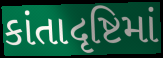
કાંતાદૃષ્ટિમાં